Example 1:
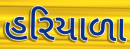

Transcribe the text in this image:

હરિયાળા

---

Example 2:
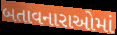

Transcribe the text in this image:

બતાવનારાઓમાં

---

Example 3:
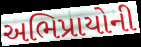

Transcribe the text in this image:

અભિપ્રાયોની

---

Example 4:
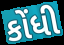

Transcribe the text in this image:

કોંધી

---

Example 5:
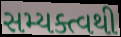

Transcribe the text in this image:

સમ્યક્ત્વથી